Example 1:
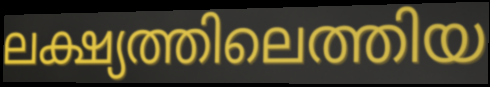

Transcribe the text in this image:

ലക്ഷ്യത്തിലെത്തിയ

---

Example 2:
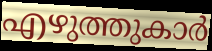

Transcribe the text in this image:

എഴുത്തുകാർ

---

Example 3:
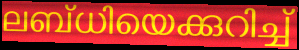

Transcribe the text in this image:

ലബ്ധിയെക്കുറിച്ച്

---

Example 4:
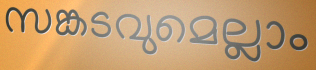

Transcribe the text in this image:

സങ്കടവുമെല്ലാം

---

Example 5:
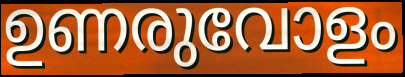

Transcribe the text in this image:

ഉണരുവോളം